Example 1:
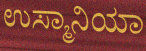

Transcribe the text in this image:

ಉಸ್ಮಾನಿಯಾ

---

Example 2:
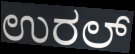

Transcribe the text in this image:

ಉರಲ್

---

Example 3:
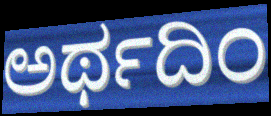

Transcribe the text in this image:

ಅರ್ಥದಿಂ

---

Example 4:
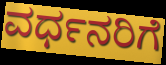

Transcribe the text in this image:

ವರ್ಧನರಿಗೆ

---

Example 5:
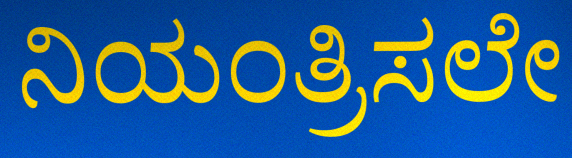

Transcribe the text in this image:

ನಿಯಂತ್ರಿಸಲೇ